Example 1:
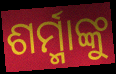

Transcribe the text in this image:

ଶର୍ମ୍ମାଙ୍କୁ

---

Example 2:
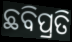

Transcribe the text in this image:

ଛବିପ୍ରତି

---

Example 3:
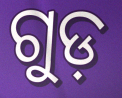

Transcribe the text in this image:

ଗୁଡ଼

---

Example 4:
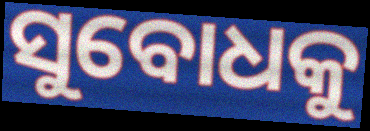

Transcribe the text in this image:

ସୁବୋଧକୁ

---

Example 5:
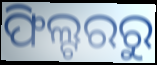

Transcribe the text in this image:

ଫିଲ୍ଟରରୁ